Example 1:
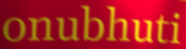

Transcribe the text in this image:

onubhuti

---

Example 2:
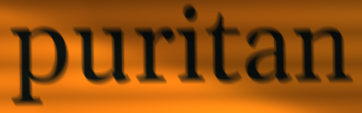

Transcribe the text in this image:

puritan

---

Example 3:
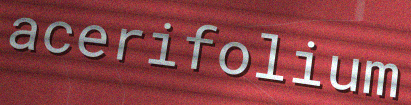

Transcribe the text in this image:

acerifolium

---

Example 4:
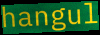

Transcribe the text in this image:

hangul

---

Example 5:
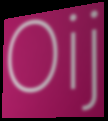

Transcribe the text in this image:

Oij